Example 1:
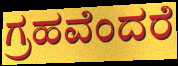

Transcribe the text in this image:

ಗ್ರಹವೆಂದರೆ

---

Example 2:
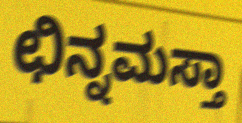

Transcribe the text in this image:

ಛಿನ್ನಮಸ್ತಾ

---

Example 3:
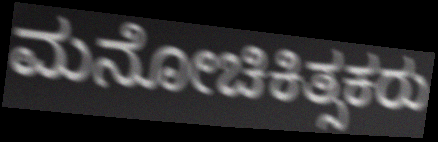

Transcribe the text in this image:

ಮನೋಚಿಕಿತ್ಸಕರು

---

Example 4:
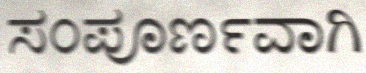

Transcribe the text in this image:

ಸಂಪೂರ್ಣವಾಗಿ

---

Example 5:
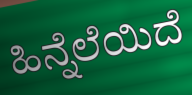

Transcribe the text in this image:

ಹಿನ್ನೆಲೆಯಿದೆ